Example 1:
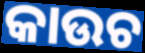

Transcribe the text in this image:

କାଉଚ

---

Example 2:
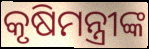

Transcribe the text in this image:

କୃଷିମନ୍ତ୍ରୀଙ୍କ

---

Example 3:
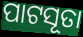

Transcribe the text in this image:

ପାଟସୂତା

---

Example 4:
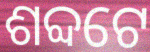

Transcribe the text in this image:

ଶବ୍ଦଟେ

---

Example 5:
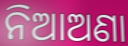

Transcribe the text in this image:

ନିଆଅଣା